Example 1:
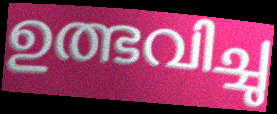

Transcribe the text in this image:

ഉത്ഭവിച്ചു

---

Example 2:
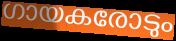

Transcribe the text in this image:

ഗായകരോടും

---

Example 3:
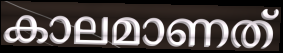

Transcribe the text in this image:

കാലമാണത്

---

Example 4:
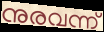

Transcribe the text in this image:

നുരവന്ന്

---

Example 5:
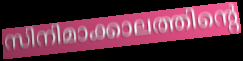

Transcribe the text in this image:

സിനിമാക്കാലത്തിന്റെ